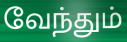
வேந்தும்